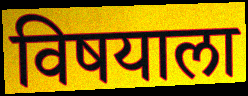
विषयाला